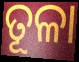
ତୂଳା